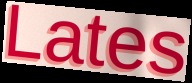
Lates